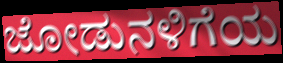
ಜೋಡುನಳಿಗೆಯ